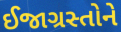
ઈજાગ્રસ્તોને